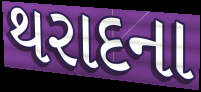
થરાદના